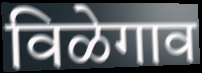
विळेगाव